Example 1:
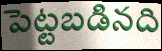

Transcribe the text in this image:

పెట్టబడినది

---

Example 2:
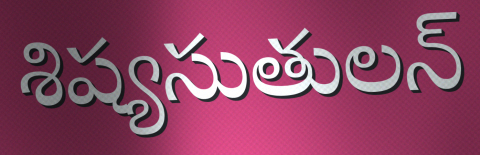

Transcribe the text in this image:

శిష్యసుతులన్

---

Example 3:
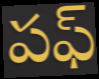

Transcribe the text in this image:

పఫ్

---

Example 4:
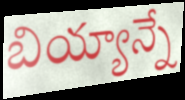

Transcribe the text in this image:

బియ్యాన్నే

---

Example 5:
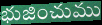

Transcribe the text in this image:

భుజించుము